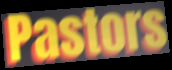
Pastors